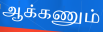
ஆக்கணும்